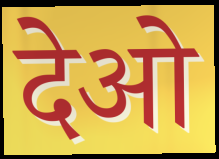
देओ